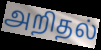
அறிதல்